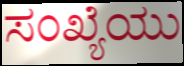
ಸಂಖ್ಯೆಯು